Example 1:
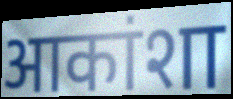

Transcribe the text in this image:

आकांशा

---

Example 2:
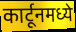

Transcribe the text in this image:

कार्टूनमध्ये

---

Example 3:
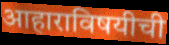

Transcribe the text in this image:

आहाराविषयीची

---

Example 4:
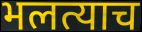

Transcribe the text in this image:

भलत्याच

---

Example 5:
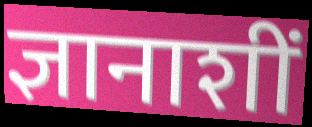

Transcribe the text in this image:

ज्ञानाशीं